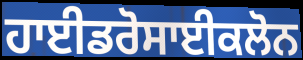
ਹਾਈਡਰੋਸਾਈਕਲੋਨ